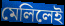
মেলিলেই